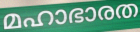
മഹാഭാരത